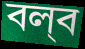
বল্‌ব